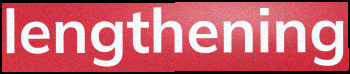
lengthening